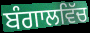
ਬੰਗਾਲਵਿੱਚ